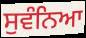
ਸੁਵੰਨਿਆ